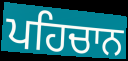
ਪਹਿਚਾਨ